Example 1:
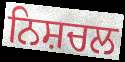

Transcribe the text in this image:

ਨਿਸ਼ਚਲ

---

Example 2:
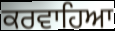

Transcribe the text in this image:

ਕਰਵਾਹਿਆ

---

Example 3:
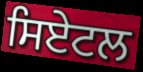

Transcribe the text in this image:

ਸਿਏਟਲ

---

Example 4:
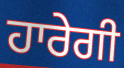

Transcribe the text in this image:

ਹਾਰੇਗੀ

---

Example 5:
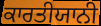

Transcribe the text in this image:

ਕਾਰਤੀਯਾਨੀ